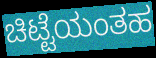
ಚಿಟ್ಟೆಯಂತಹ